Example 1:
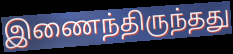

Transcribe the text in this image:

இணைந்திருந்தது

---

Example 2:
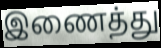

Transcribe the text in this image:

இணைத்து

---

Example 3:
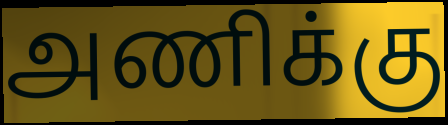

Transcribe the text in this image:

அணிக்கு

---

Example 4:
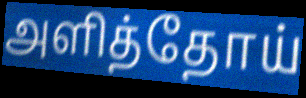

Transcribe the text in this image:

அளித்தோய்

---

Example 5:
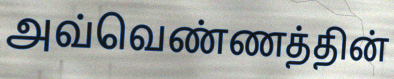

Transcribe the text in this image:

அவ்வெண்ணத்தின்